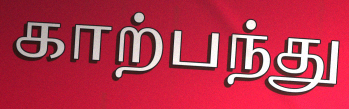
காற்பந்து